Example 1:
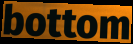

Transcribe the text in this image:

bottom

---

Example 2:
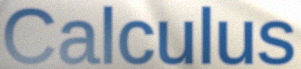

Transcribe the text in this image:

Calculus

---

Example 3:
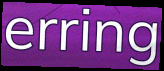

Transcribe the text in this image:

erring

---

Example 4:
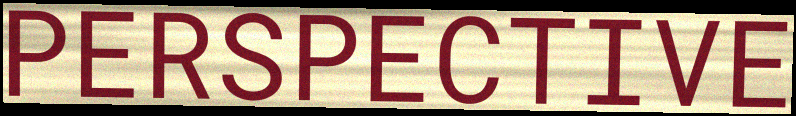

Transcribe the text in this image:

PERSPECTIVE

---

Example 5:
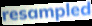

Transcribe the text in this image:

resampled